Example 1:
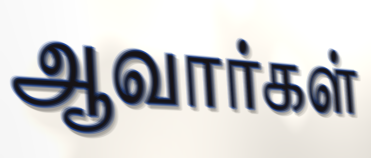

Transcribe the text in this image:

ஆவார்கள்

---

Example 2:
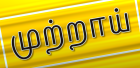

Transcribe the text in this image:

முற்றாய்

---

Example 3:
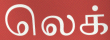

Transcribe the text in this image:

லெக்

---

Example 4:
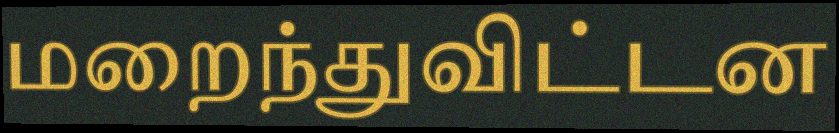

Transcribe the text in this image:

மறைந்துவிட்டன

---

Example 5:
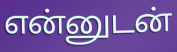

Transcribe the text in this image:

என்னுடன்